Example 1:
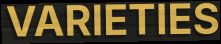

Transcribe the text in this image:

VARIETIES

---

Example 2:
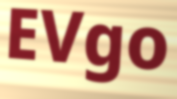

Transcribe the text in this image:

EVgo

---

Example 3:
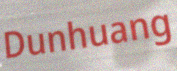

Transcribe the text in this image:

Dunhuang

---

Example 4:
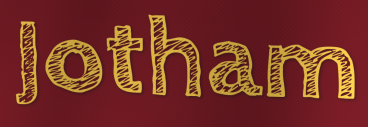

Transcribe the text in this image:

Jotham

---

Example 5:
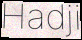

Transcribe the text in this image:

Hadji